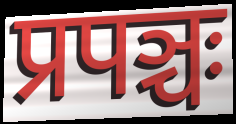
प्रपञ्चः